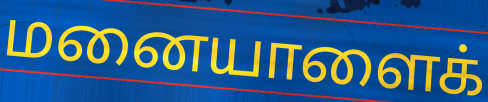
மனையாளைக்